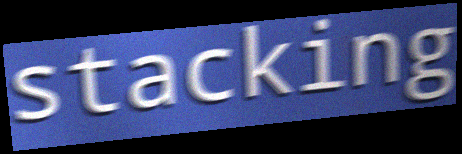
stacking